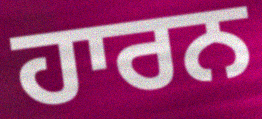
ਹਾਰਨ